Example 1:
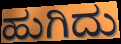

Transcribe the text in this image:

ಹುಗಿದು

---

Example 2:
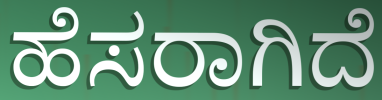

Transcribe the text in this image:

ಹೆಸರಾಗಿದೆ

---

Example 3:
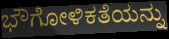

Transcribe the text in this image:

ಭೌಗೋಳಿಕತೆಯನ್ನು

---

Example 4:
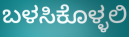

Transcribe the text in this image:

ಬಳಸಿಕೊಳ್ಳಲಿ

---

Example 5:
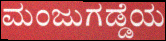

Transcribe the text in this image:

ಮಂಜುಗಡ್ಡೆಯ